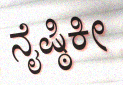
ನೈಷ್ಠಿಕೀ